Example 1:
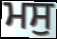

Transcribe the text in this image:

ਮਸੁ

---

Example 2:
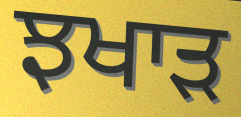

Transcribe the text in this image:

ਝਖਾੜ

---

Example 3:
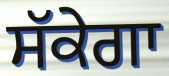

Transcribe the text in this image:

ਸੱਕੇਗਾ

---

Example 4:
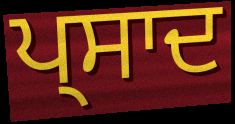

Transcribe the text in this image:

ਪ੍ਸਾਦ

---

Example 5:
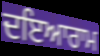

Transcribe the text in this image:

ਦਇਆਰਾਮ